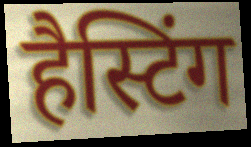
हैस्टिंग